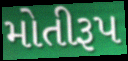
મોતીરૂપ